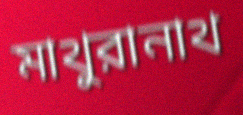
মাথুরানাথ